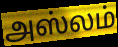
அஸ்லம்